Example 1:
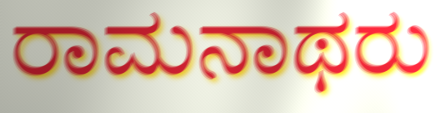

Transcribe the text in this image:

ರಾಮನಾಥರು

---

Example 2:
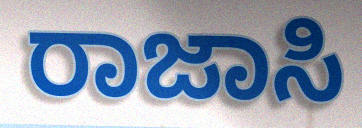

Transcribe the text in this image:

ರಾಜಾಸಿ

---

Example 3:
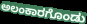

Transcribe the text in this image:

ಅಲಂಕಾರಗೊಂಡು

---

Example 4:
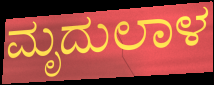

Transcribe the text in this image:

ಮೃದುಲಾಳ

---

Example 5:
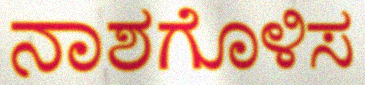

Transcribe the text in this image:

ನಾಶಗೊಳಿಸ